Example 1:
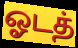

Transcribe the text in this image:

ஓடத்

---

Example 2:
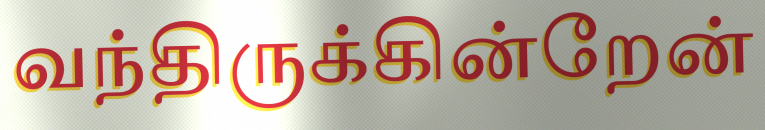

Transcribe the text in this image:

வந்திருக்கின்றேன்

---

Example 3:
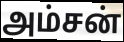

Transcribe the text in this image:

அம்சன்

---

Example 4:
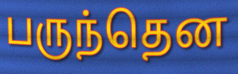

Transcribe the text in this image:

பருந்தென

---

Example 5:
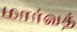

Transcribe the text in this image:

மார்வத்